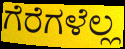
ಗೆರೆಗಳೆಲ್ಲ